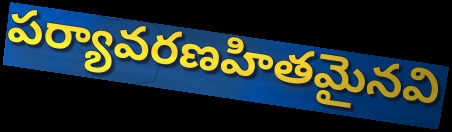
పర్యావరణహితమైనవి